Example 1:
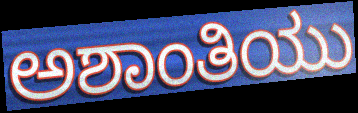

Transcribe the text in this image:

ಅಶಾಂತಿಯು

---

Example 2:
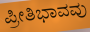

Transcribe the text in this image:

ಪ್ರೀತಿಭಾವವು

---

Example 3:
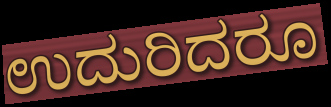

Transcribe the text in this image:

ಉದುರಿದರೂ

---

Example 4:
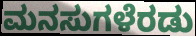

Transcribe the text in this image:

ಮನಸುಗಳೆರಡು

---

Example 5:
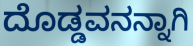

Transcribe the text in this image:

ದೊಡ್ಡವನನ್ನಾಗಿ